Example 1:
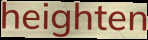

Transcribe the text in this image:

heighten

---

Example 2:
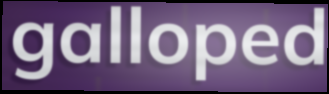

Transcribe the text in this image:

galloped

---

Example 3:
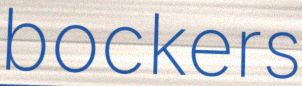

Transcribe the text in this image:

bockers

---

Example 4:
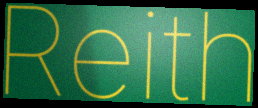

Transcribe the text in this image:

Reith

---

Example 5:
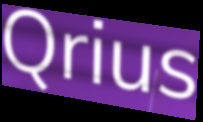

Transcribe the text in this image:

Qrius